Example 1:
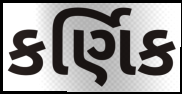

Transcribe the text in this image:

કર્ણિક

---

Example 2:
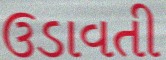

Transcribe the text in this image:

ઉડાવતી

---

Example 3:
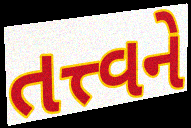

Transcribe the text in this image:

તત્ત્વને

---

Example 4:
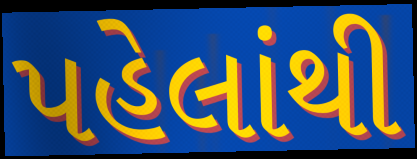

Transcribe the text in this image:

પહેલાંથી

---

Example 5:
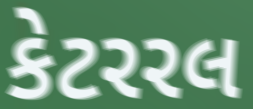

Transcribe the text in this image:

કેટરરલ